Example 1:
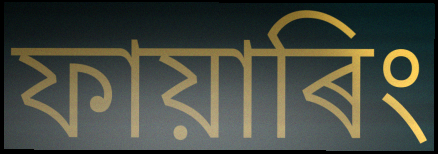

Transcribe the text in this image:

ফায়াৰিং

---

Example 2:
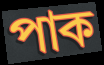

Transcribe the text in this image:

পাক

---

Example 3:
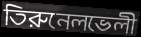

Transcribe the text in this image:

তিৰুনেলভেলী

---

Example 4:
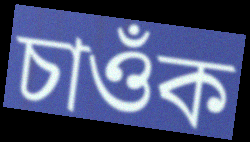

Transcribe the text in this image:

চাওঁক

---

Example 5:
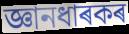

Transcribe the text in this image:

জ্ঞানধাৰকৰ